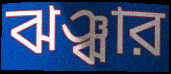
ঝঞ্ঝার